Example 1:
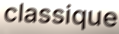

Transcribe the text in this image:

classique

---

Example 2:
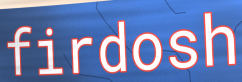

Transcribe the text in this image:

firdosh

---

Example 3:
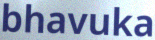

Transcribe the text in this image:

bhavuka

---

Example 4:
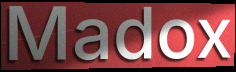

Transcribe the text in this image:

Madox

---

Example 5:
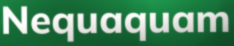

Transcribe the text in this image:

Nequaquam